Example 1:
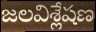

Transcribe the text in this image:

జలవిశ్లేషణ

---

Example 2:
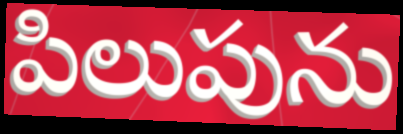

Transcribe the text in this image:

పిలుపును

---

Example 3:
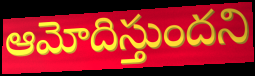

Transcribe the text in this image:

ఆమోదిస్తుందని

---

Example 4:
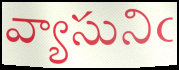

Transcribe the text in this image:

వ్యాసునిఁ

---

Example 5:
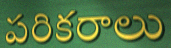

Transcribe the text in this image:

పరికరాలు